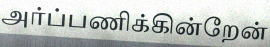
அர்ப்பணிக்கின்றேன்